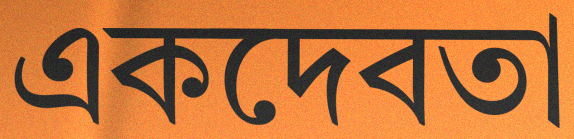
একদেবতা